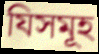
যিসমূহ